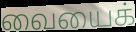
வையைக்